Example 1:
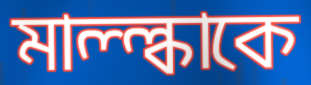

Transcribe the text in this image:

মাল্ল্কাকে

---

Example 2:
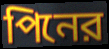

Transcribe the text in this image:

পিনের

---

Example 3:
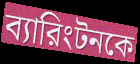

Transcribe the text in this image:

ব্যারিংটনকে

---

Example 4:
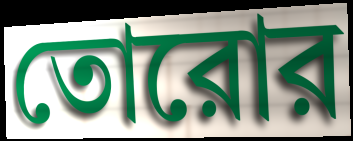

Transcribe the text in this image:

তোরোর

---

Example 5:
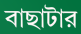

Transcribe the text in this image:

বাছাটার